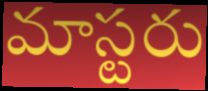
మాస్టరు